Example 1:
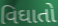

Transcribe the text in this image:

વિઘાતો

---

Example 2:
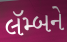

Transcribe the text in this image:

લૅમ્બને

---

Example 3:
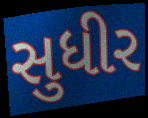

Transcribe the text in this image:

સુધીર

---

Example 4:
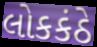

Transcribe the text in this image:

લોકકંઠે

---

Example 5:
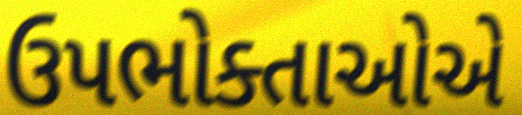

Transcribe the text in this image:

ઉપભોક્તાઓએ